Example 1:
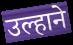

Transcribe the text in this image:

उल्हाने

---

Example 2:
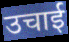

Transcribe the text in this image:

उचाई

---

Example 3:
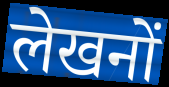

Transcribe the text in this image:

लेखनों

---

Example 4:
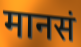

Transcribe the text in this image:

मानसं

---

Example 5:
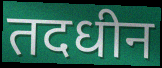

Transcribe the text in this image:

तदधीन